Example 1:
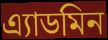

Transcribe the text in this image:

এ্যাডমিন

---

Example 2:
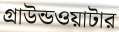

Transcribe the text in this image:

গ্রাউন্ডওয়াটার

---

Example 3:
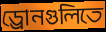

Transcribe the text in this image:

ড্রোনগুলিতে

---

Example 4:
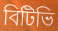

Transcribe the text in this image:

বিটিভি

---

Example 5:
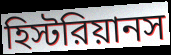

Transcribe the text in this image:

হিস্টরিয়ানস